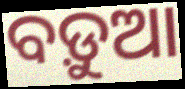
ବଡ଼ୁଆ